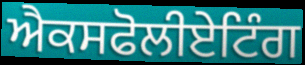
ਐਕਸਫੋਲੀਏਟਿੰਗ